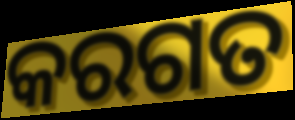
କରଗତ